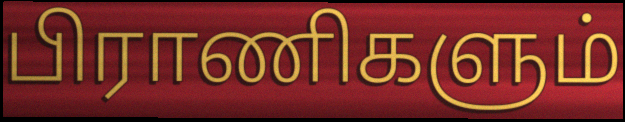
பிராணிகளும்